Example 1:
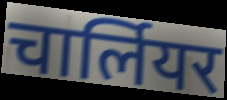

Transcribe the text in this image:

चार्लियर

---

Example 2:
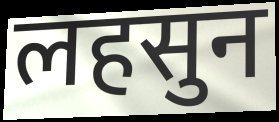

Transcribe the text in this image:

लहसुन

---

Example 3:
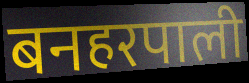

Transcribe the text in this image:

बनहरपाली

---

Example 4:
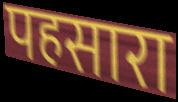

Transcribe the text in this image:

पहसारा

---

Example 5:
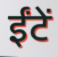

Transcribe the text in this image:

ईंटें